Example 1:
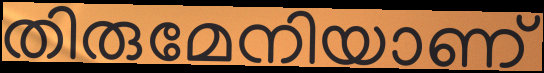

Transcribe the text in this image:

തിരുമേനിയാണ്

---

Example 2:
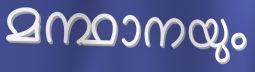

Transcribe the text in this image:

മന്ഥാനയും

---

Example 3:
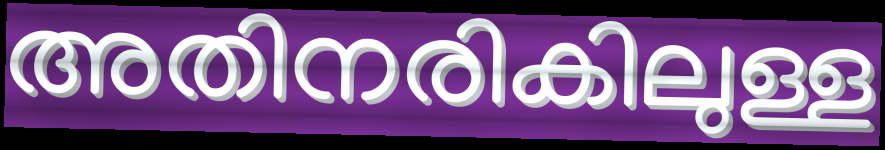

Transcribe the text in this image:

അതിനരികിലുള്ള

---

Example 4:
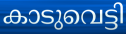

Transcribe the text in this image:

കാടുവെട്ടി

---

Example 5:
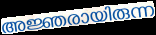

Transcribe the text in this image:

അജ്ഞരായിരുന്ന